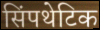
सिंपथेटिक